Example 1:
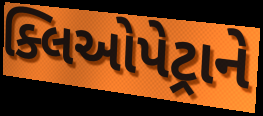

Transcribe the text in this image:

ક્લિઓપેટ્રાને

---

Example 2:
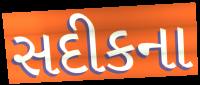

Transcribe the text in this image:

સદીકના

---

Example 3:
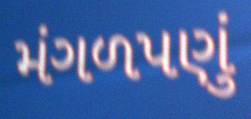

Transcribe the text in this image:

મંગળપણું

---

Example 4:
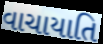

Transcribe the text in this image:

વાચાયાતિ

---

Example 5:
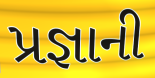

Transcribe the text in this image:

પ્રજ્ઞાની